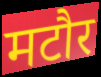
मटौर